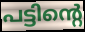
പട്ടിന്റെ